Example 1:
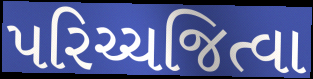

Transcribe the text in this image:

પરિચ્ચજિત્વા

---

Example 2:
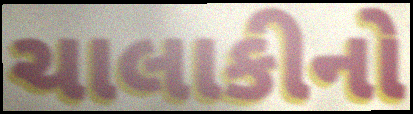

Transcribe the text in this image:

ચાલાકીનો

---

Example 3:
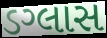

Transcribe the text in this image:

ડગ્લાસ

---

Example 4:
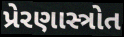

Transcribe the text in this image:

પ્રેરણાસ્ત્રોત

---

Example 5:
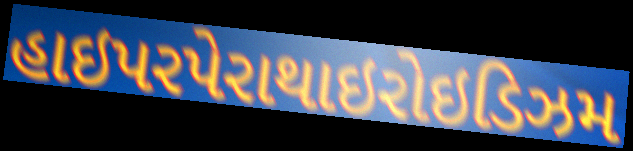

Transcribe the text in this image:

હાઇપરપેરાથાઇરોઇડિઝમ